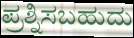
ಪ್ರಶ್ನಿಸಬಹುದು